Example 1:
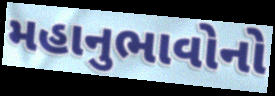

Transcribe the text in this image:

મહાનુભાવોનો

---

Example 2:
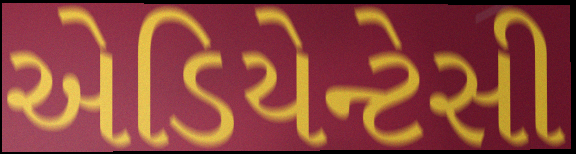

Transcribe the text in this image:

એડિયેન્ટેસી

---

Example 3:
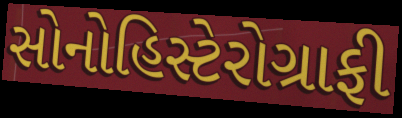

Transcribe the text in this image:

સોનોહિસ્ટેરોગ્રાફી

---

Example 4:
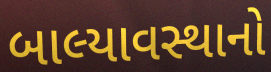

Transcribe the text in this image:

બાલ્યાવસ્થાનો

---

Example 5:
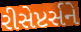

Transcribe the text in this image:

રીસેપ્ટર્સને